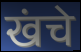
खंचे